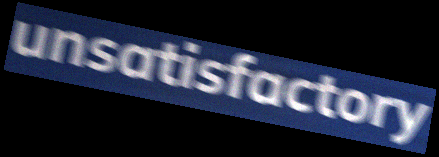
unsatisfactory